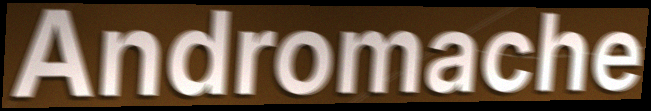
Andromache